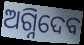
ଅଗ୍ନିଦେବ